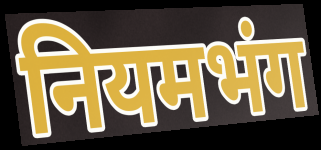
नियमभंग